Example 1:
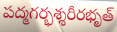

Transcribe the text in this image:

పద్మగర్భశ్శరీరభృత్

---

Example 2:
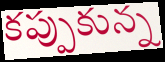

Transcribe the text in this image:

కప్పుకున్న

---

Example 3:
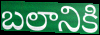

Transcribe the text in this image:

బలానికి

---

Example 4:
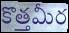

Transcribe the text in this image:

కొత్తమీర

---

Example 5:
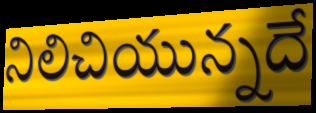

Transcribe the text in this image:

నిలిచియున్నదే